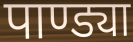
पाण्ड्या